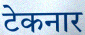
टेकनार